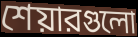
শেয়ারগুলো